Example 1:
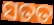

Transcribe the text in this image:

ସତତ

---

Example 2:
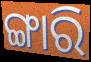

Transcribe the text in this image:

ଙ୍ଗାରି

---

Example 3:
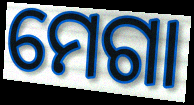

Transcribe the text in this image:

ମେଗା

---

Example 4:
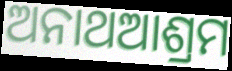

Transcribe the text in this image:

ଅନାଥଆଶ୍ରମ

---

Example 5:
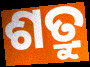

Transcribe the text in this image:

ଶତ୍ରୁ